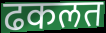
ढकलत